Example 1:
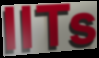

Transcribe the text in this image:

IITs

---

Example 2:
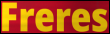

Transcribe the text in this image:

Freres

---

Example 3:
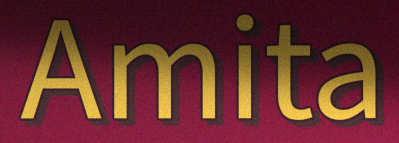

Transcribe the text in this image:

Amita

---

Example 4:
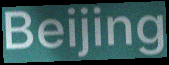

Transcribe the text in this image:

Beijing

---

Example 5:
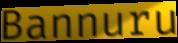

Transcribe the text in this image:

Bannuru